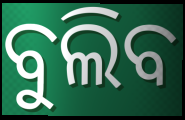
ବୁଲିବ